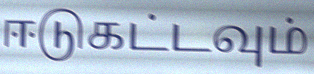
ஈடுகட்டவும்